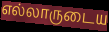
எல்லாருடைய